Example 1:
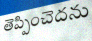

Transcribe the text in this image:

తెప్పించెదను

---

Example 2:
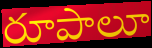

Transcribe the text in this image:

రూపాలూ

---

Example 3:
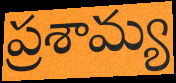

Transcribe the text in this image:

ప్రశామ్య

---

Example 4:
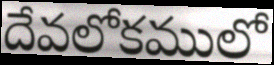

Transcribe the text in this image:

దేవలోకములో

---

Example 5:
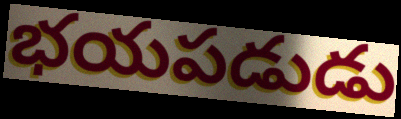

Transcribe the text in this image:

భయపడుడు